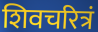
शिवचरित्रं